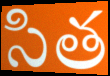
సిత